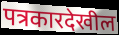
पत्रकारदेखील